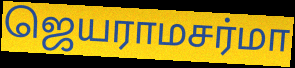
ஜெயராமசர்மா